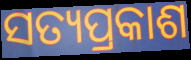
ସତ୍ୟପ୍ରକାଶ